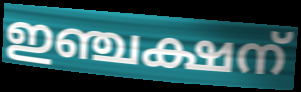
ഇഞ്ചക്ഷന്